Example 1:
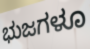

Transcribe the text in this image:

ಭುಜಗಳೂ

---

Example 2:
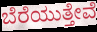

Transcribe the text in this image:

ಬೆರೆಯುತ್ತೇವೆ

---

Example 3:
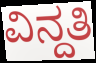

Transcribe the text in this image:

ವಿನ್ದತಿ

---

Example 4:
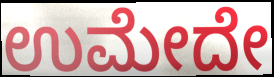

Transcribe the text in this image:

ಉಮೇದೇ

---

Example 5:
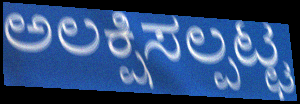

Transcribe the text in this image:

ಅಲಕ್ಷಿಸಲ್ಪಟ್ಟ